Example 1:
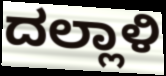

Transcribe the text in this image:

ದಲ್ಲಾಳಿ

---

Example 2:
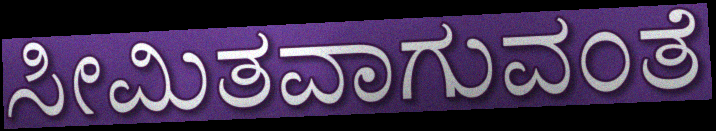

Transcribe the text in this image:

ಸೀಮಿತವಾಗುವಂತೆ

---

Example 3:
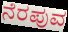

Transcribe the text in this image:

ನೆರಪುವ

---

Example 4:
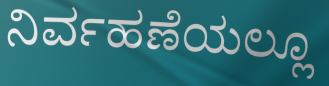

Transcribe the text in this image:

ನಿರ್ವಹಣೆಯಲ್ಲೂ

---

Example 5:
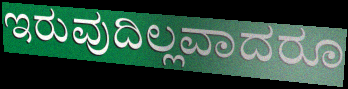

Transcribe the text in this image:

ಇರುವುದಿಲ್ಲವಾದರೂ